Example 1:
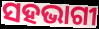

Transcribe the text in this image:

ସହଭାଗୀ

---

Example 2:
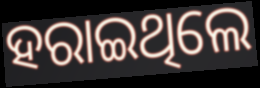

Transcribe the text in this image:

ହରାଇଥିଲେ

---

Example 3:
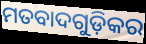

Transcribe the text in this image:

ମତବାଦଗୁଡ଼ିକର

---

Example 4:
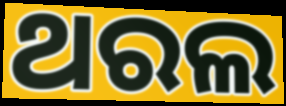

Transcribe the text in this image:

ଥରଲ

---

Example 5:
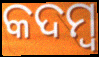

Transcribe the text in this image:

କଦମ୍ୱ